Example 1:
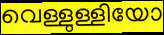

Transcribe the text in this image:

വെള്ളുള്ളിയോ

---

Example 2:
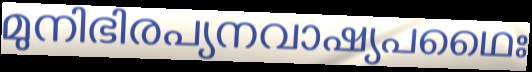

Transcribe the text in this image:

മുനിഭിരപ്യനവാഷ്യപഥൈഃ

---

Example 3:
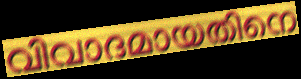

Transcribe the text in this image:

വിവാദമായതിനെ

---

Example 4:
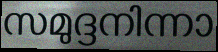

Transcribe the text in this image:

സമുദ്ദനിന്നാ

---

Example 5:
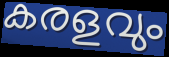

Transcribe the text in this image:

കരളവും